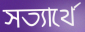
সত্যার্থে